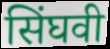
सिंघवी